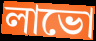
লাভো